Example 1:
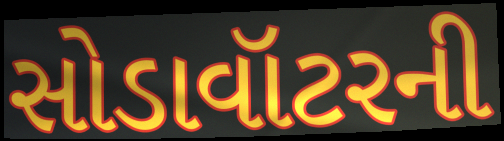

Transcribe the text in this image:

સોડાવૉટરની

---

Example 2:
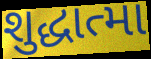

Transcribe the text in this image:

શુદ્ધાત્મા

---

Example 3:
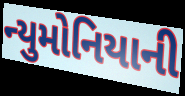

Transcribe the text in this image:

ન્યુમોનિયાની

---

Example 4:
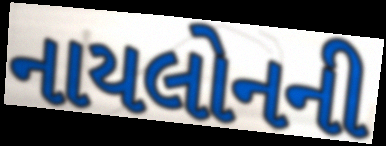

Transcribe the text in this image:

નાયલોનની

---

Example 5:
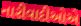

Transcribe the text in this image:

નારીવાદીઓએ